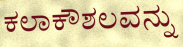
ಕಲಾಕೌಶಲವನ್ನು